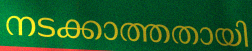
നടക്കാത്തതായി